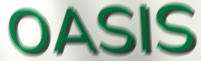
OASIS